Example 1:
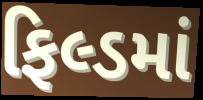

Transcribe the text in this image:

ફિલ્ડમાં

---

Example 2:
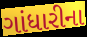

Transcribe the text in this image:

ગાંધારીના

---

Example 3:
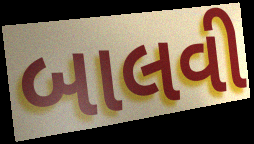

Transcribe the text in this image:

બાલવી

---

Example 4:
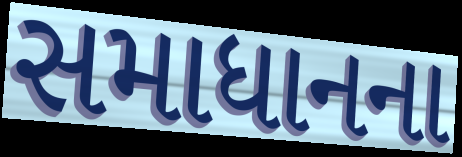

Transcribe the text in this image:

સમાધાનના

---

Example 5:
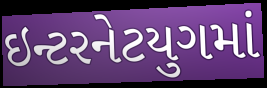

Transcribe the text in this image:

ઇન્ટરનેટયુગમાં